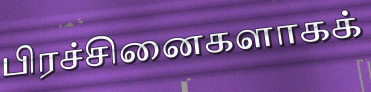
பிரச்சினைகளாகக்